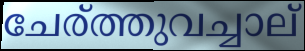
ചേര്ത്തുവച്ചാല്